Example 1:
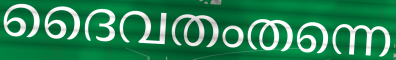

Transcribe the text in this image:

ദൈവതംതന്നെ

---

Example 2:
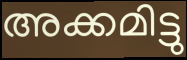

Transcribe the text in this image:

അക്കമിട്ടു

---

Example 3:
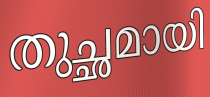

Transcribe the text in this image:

തുച്ഛമായി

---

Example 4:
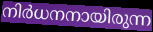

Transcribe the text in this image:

നിർധനനായിരുന്ന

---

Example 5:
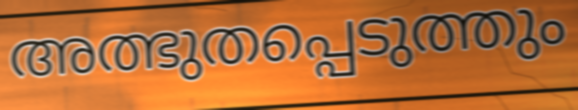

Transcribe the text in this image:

അത്ഭുതപ്പെടുത്തും